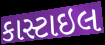
કાસ્ટાઇલ